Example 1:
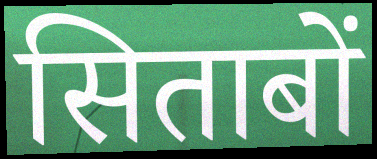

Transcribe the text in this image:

सिताबों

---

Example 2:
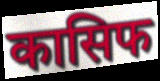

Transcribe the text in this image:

कासिफ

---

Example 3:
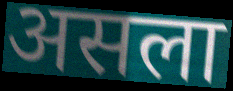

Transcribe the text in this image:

असला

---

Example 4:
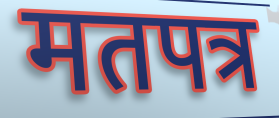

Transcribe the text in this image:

मतपत्र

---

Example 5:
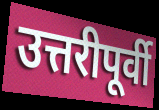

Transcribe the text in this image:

उत्तरीपूर्वी